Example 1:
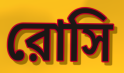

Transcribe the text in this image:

রোসি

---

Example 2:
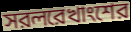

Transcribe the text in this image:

সরলরেখাংশের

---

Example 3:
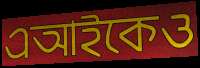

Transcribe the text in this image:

এআইকেও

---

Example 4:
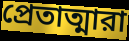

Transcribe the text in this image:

প্রেতাত্মারা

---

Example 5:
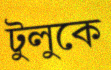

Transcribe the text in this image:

টুলুকে